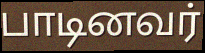
பாடினவர்